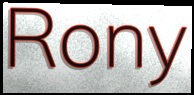
Rony